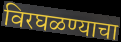
विरघळण्याचा